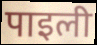
पाइली